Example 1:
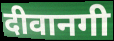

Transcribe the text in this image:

दीवानगी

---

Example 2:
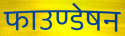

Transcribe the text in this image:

फाउण्डेषन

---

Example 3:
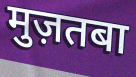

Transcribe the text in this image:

मुज़तबा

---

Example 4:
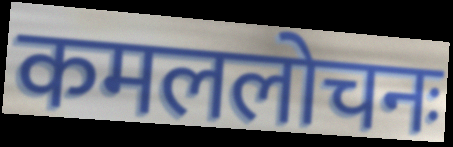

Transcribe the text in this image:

कमललोचनः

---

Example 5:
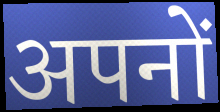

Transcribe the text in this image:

अपनों